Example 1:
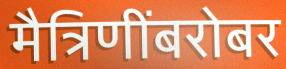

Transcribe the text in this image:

मैत्रिणींबरोबर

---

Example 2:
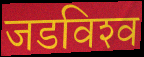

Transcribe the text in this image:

जडविश्व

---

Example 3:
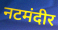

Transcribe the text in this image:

नटमंदीर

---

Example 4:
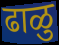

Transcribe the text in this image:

ढाळु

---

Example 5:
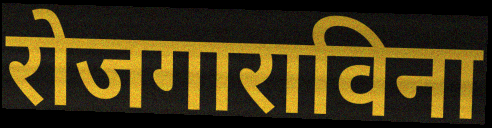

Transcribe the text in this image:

रोजगाराविना